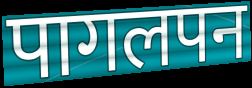
पागलपन